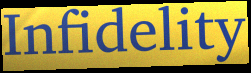
Infidelity